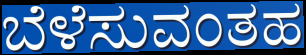
ಬೆಳೆಸುವಂತಹ